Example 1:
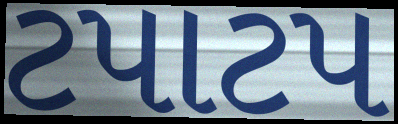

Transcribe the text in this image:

ટપાટપ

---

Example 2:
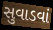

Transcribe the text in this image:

સુવાડવાં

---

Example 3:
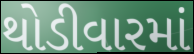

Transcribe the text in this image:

થોડીવારમાં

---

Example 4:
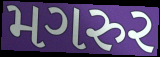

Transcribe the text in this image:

મગરુર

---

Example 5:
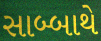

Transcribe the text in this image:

સાબ્બાથે